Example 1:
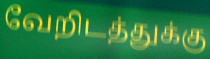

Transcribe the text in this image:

வேறிடத்துக்கு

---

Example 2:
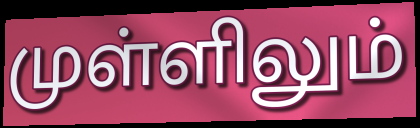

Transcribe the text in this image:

முள்ளிலும்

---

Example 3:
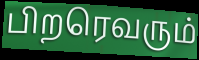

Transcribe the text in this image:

பிறரெவரும்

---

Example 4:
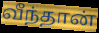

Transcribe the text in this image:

வீந்தான்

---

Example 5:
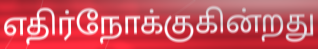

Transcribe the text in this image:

எதிர்நோக்குகின்றது